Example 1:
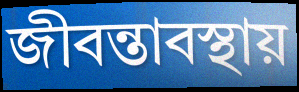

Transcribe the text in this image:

জীবন্তাবস্থায়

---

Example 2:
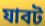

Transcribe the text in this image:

যাবট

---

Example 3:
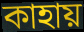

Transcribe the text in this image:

কাহায়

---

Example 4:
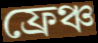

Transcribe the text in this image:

ফ্রেঞ্চ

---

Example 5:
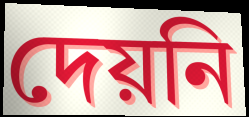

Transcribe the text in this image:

দেয়নি